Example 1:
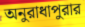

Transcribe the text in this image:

অনুরাধাপুরার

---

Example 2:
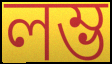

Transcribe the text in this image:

লম্ভ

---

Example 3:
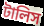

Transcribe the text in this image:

টালিস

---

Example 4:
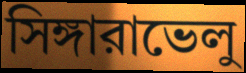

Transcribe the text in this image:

সিঙ্গারাভেলু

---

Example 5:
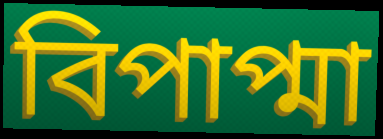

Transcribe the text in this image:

বিপাপ্মা